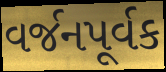
વર્જનપૂર્વક